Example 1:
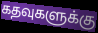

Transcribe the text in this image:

கதவுகளுக்கு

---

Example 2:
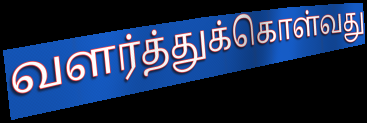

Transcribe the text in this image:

வளர்த்துக்கொள்வது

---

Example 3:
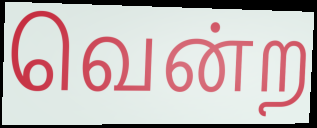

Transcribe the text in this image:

வென்ற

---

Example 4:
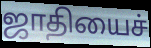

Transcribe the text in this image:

ஜாதியைச்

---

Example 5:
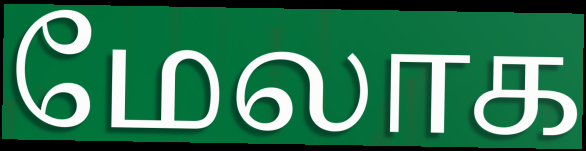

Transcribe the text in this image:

மேலாக